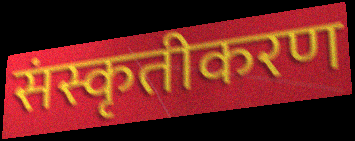
संस्कृतीकरण